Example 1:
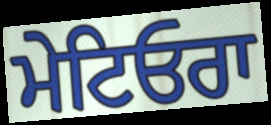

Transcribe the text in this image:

ਮੇਟਿਓਰਾ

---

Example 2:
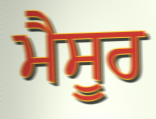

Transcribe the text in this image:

ਮੈਸੂਰ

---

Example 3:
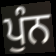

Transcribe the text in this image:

ਪੁੰਨ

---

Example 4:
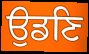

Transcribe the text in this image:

ਉਡਣਿ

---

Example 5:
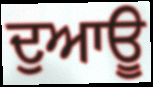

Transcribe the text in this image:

ਦੁਆਊ